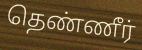
தெண்ணீர்